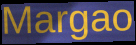
Margao